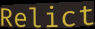
Relict